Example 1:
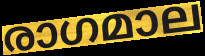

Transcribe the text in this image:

രാഗമാല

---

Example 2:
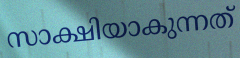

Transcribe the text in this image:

സാക്ഷിയാകുന്നത്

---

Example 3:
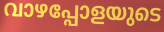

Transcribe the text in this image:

വാഴപ്പോളയുടെ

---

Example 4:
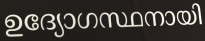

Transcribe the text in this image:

ഉദ്യോഗസ്ഥനായി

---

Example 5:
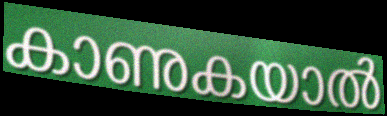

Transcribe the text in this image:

കാണുകയാൽ